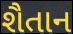
શૈતાન